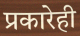
प्रकारेही